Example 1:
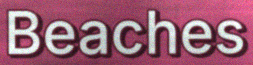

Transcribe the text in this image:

Beaches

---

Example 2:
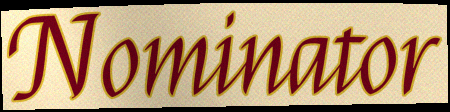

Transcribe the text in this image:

Nominator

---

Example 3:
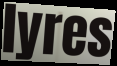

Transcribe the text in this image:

lyres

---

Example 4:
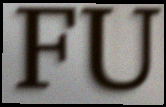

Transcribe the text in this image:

FU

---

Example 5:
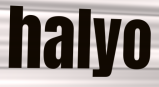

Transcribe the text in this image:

halyo